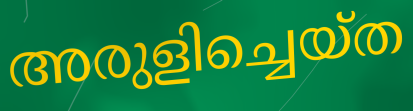
അരുളിച്ചെയ്ത